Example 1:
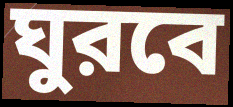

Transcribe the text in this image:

ঘুরবে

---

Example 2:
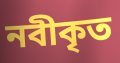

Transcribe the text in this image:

নবীকৃত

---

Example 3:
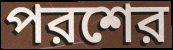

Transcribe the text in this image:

পরশের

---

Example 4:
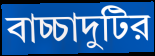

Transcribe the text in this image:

বাচ্চাদুটির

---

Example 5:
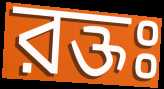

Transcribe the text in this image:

রক্তঃ